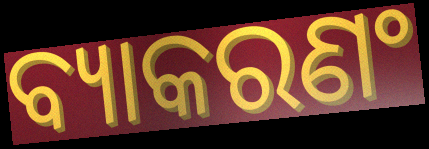
ବ୍ୟାକରଣଂ